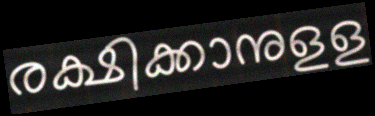
രക്ഷിക്കാനുളള